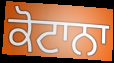
ਕੋਟਾਨਾ